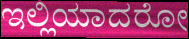
ಇಲ್ಲಿಯಾದರೋ